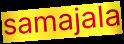
samajala